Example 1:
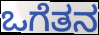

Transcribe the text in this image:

ಒಗೆತನ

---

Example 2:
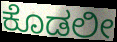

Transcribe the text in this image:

ಕೊಡಲೀ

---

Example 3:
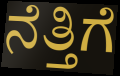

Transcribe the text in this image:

ನೆತ್ತಿಗೆ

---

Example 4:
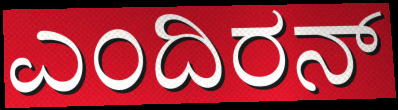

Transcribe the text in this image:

ಎಂದಿರನ್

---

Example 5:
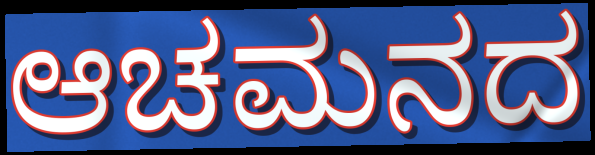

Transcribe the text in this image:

ಆಚಮನದ